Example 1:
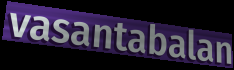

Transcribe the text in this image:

vasantabalan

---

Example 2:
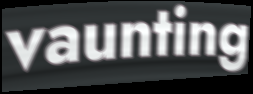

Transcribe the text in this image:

vaunting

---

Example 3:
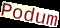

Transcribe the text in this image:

Podum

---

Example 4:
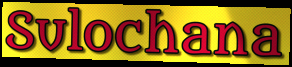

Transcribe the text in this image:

Sulochana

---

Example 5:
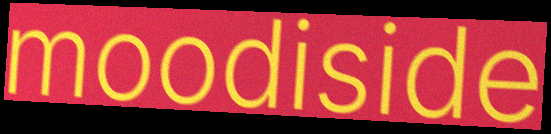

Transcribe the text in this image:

moodiside